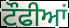
ਟੌਫੀਆਂ